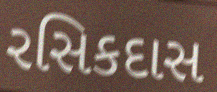
રસિકદાસ